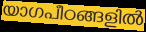
യാഗപീഠങ്ങളിൽ